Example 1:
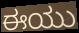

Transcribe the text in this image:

ಈಯು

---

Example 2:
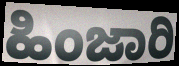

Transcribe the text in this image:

ಹಿಂಜಾರಿ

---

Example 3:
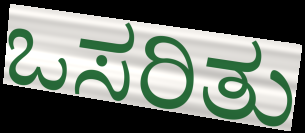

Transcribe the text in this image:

ಒಸರಿತು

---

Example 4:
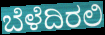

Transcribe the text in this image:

ಬೆಳೆದಿರಲಿ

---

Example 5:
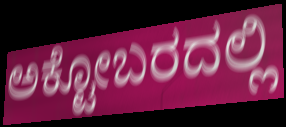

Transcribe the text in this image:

ಅಕ್ಟೋಬರದಲ್ಲಿ